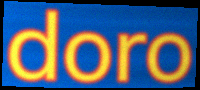
doro